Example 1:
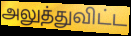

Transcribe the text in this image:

அலுத்துவிட்ட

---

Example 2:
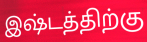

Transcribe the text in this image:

இஷ்டத்திற்கு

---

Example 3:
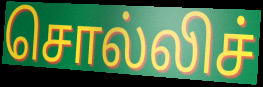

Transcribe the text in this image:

சொல்லிச்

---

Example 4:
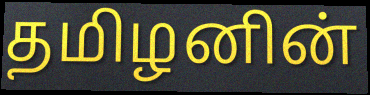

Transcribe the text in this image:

தமிழனின்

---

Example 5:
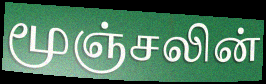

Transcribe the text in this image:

மூஞ்சலின்